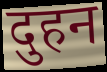
दुहन